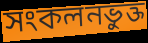
সংকলনভুক্ত